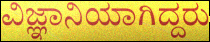
ವಿಜ್ಞಾನಿಯಾಗಿದ್ದರು